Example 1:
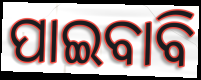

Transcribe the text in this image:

ପାଇବାବି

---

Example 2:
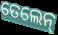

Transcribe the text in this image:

ତେଲେନ୍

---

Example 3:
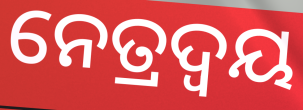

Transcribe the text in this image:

ନେତ୍ରଦ୍ଵୟ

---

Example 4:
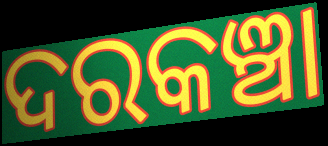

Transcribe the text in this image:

ଦରକଞ୍ଚା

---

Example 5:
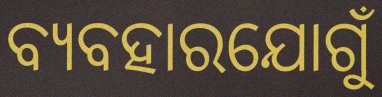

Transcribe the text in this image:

ବ୍ୟବହାରଯୋଗୁଁ